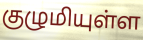
குழுமியுள்ள